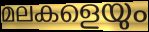
മലകളെയും